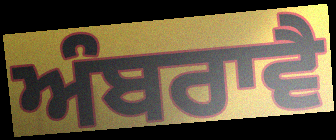
ਅੰਬਰਾਵੈ